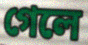
গেলে